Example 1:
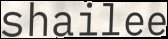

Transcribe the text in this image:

shailee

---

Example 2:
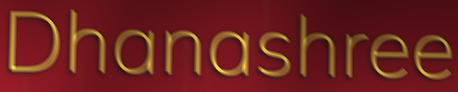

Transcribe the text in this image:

Dhanashree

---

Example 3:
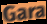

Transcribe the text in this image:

Gara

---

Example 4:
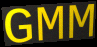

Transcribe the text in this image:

GMM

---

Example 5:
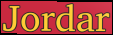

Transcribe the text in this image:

Jordar